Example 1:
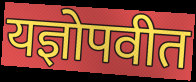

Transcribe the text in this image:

यज्ञोपवीत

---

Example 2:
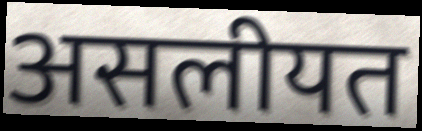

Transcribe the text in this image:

असलीयत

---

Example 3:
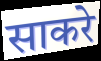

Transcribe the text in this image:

साकरे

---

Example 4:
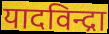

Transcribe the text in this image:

यादविन्द्रा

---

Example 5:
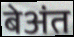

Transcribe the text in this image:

बेअंत